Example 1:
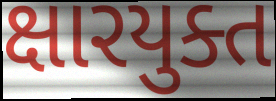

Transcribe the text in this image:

ક્ષારયુક્ત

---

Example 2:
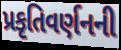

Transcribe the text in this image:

પ્રકૃતિવર્ણનની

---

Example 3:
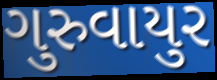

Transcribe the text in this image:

ગુરુવાયુર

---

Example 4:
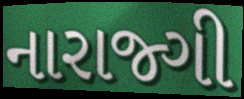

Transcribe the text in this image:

નારાજ્ગી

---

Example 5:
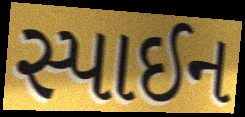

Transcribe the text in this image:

સ્પાઈન